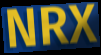
NRX